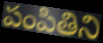
పంపితిని